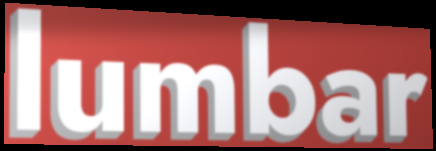
lumbar